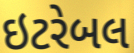
ઇટરેબલ